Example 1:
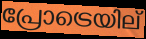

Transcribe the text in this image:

പ്രോട്രെയില്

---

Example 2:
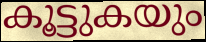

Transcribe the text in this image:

കൂട്ടുകയും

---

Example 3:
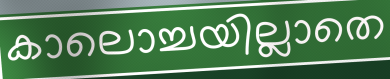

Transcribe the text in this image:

കാലൊച്ചയില്ലാതെ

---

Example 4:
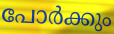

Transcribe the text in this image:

പോർക്കും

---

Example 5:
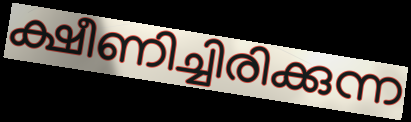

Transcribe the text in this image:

ക്ഷീണിച്ചിരിക്കുന്ന